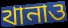
থানাও